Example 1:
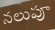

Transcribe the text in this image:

నలుపూ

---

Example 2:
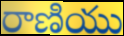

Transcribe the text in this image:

రాణియు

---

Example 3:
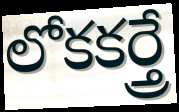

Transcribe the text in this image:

లోకకర్త్రే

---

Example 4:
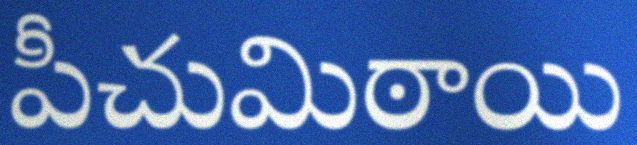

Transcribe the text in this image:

పీచుమిఠాయి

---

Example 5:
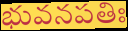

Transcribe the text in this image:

భువనపతిః